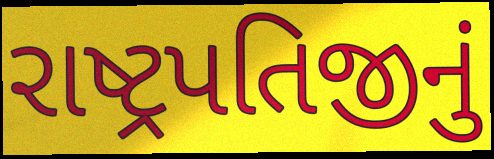
રાષ્ટ્રપતિજીનું